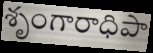
శృంగారాధిపా